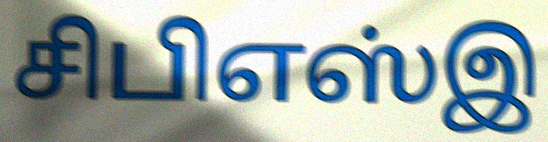
சிபிஎஸ்இ